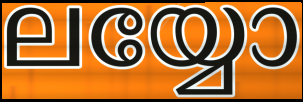
ലയ്യോ